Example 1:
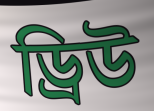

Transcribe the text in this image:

ড্রিউ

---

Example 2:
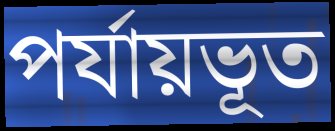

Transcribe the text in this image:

পর্যায়ভূত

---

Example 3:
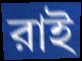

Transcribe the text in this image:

রাই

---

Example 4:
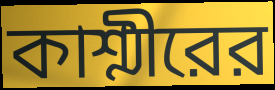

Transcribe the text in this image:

কাশ্মীরের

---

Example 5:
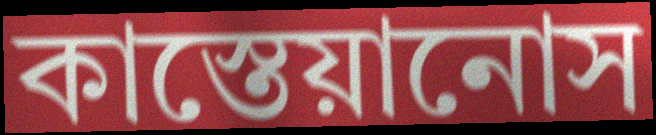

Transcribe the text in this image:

কাস্তেয়ানোস